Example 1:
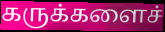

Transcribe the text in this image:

கருக்களைச்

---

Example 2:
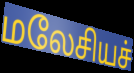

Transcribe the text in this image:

மலேசியச்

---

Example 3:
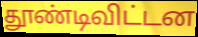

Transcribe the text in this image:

தூண்டிவிட்டன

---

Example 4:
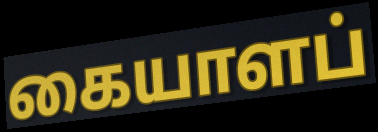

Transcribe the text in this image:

கையாளப்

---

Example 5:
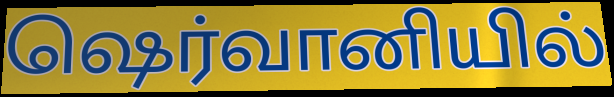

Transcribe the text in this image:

ஷெர்வானியில்